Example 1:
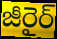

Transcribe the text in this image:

జీరైర్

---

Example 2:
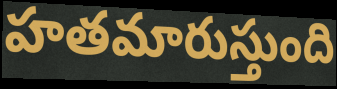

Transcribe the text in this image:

హతమారుస్తుంది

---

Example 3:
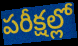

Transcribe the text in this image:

పరీక్షల్లో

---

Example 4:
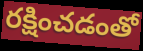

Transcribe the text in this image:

రక్షించడంతో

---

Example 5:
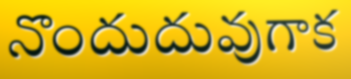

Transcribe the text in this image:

నొందుదువుగాక